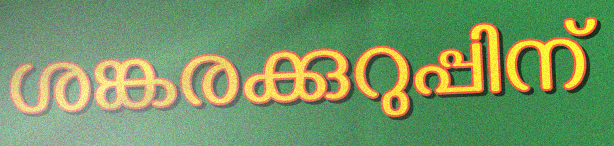
ശങ്കരക്കുറുപ്പിന്